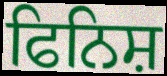
ਫਿਨਿਸ਼